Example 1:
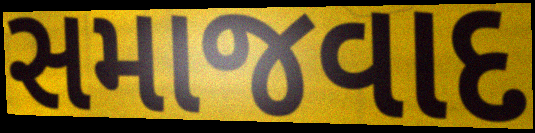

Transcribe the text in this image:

સમાજવાદ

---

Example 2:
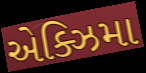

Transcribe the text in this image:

એક્ઝિમા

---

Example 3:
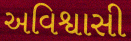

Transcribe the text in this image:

અવિશ્વાસી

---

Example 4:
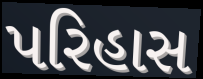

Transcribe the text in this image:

પરિહાસ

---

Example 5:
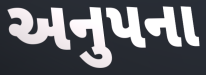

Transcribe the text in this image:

અનુપના